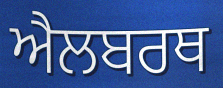
ਐਲਬਰਥ